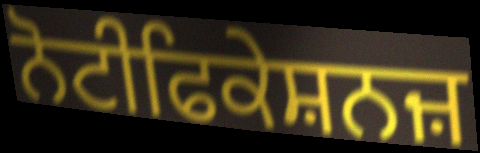
ਨੋਟੀਫਿਕੇਸ਼ਨਜ਼